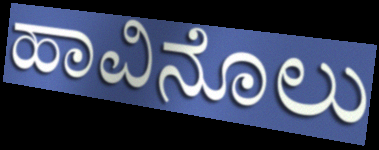
ಹಾವಿನೊಲು